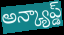
అన్క్యాప్డ్